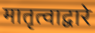
मातृत्वाद्वारे